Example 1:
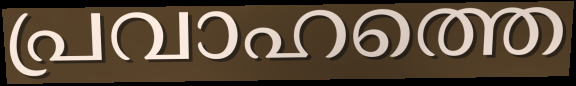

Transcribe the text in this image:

പ്രവാഹത്തെ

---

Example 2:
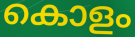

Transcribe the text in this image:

കൊളം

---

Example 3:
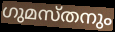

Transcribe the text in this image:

ഗുമസ്തനും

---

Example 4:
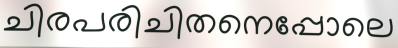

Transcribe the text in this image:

ചിരപരിചിതനെപ്പോലെ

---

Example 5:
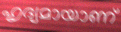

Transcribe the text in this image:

ഹൃദ്യമായാണ്